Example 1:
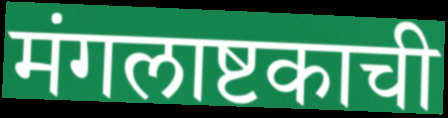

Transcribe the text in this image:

मंगलाष्टकाची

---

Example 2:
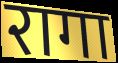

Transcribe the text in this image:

रागा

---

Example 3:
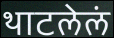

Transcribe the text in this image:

थाटलेलं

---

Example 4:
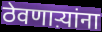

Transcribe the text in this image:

ठेवणाऱ्‍यांना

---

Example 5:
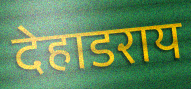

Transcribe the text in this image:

देहाडराय